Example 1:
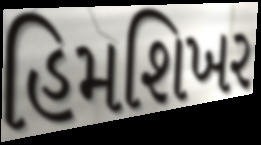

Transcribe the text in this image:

હિમશિખર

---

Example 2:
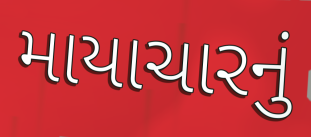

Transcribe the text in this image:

માયાચારનું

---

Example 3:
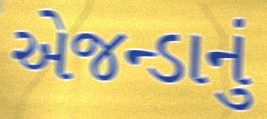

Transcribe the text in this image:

એજન્ડાનું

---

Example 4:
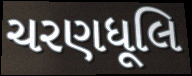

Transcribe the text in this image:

ચરણધૂલિ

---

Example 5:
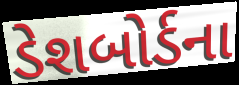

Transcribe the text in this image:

ડેશબોર્ડના